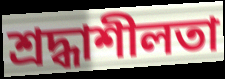
শ্রদ্ধাশীলতা